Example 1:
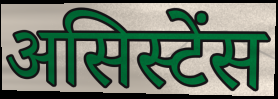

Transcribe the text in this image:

असिस्टेंस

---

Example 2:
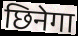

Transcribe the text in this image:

छिनेगा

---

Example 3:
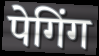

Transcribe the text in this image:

पेगिंग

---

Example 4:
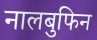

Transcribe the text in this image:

नालबुफिन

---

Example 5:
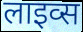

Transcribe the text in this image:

लाइव्स